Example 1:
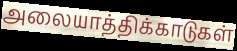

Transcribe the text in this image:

அலையாத்திக்காடுகள்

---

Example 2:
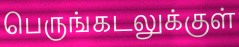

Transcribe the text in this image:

பெருங்கடலுக்குள்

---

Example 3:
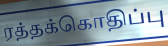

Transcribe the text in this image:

ரத்தக்கொதிப்பு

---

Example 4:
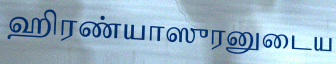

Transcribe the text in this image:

ஹிரண்யாஸுரனுடைய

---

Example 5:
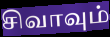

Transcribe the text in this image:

சிவாவும்